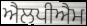
ਐਲਪੀਐਮ